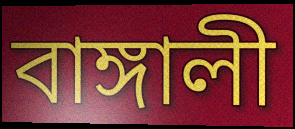
বাঙ্গালী